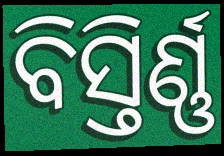
ବିସ୍ତିର୍ଣ୍ଣ